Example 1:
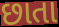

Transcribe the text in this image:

છાતા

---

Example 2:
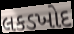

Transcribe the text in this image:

લકડખોદ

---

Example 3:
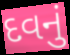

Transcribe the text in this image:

દવનું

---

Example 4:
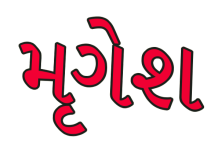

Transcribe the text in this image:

મૃગેશ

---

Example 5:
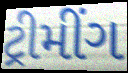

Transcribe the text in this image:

ટ્રીમીંગ